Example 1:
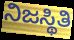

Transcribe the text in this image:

ನಿಜಸ್ಥಿತಿ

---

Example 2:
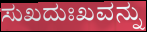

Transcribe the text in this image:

ಸುಖದುಃಖವನ್ನು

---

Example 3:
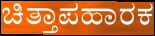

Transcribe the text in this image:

ಚಿತ್ತಾಪಹಾರಕ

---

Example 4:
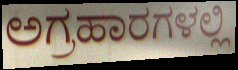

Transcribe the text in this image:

ಅಗ್ರಹಾರಗಳಲ್ಲಿ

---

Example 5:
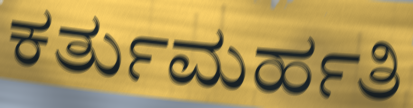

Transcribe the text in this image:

ಕರ್ತುಮರ್ಹತಿ